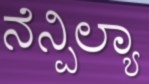
ನೆನ್ಪಿಲ್ಯಾ